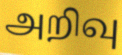
அறிவு